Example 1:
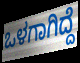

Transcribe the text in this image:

ಒಳಗಾಗಿದ್ದೆ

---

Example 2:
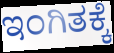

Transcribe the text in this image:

ಇಂಗಿತಕ್ಕೆ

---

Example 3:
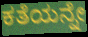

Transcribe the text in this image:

ಕತೆಯನ್ನೇ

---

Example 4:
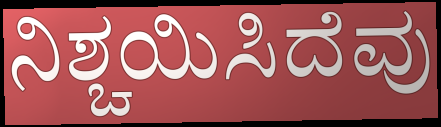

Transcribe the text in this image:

ನಿಶ್ಚಯಿಸಿದೆವು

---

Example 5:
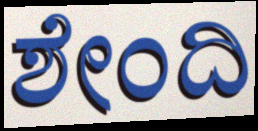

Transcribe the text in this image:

ಶೇಂದಿ